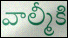
వాల్మీకి